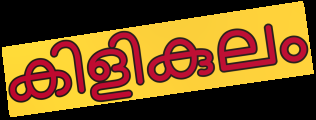
കിളികുലം